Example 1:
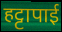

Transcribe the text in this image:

हट्टापाई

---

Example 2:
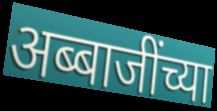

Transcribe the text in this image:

अब्बाजींच्या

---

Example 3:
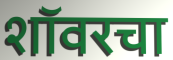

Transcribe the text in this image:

शॉवरचा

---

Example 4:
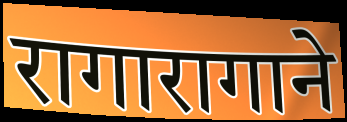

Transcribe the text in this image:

रागारागाने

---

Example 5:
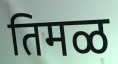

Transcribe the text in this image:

तिमळ